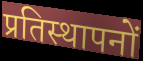
प्रतिस्थापनों